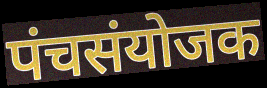
पंचसंयोजक